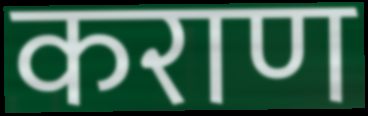
कराण